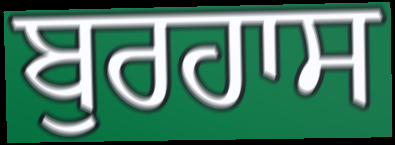
ਬੁਰਹਾਸ